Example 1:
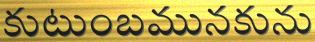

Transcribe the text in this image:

కుటుంబమునకును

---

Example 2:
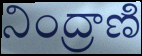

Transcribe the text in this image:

నింద్రాణి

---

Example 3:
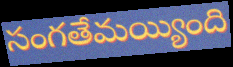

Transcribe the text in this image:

సంగతేమయ్యింది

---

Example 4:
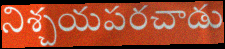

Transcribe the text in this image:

నిశ్చయపరచాడు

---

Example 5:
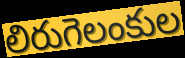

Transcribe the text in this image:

లిరుగెలంకుల